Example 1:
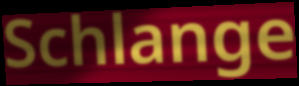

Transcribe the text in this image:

Schlange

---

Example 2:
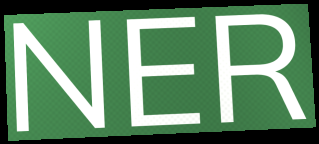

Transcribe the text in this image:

NER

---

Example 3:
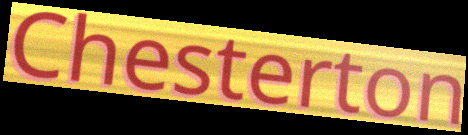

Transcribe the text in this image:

Chesterton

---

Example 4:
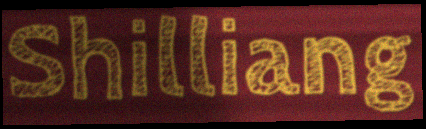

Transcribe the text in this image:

Shilliang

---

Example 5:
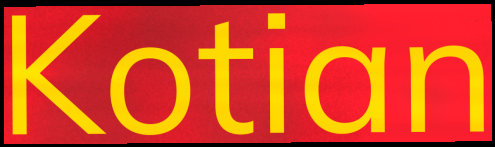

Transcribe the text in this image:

Kotian